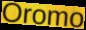
Oromo